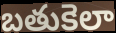
బతుకెలా